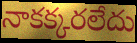
నాకక్కరలేదు